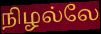
நிழல்லே